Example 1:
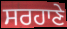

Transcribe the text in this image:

ਸਰਹਾਣੇ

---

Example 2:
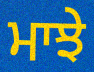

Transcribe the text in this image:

ਮਾਝੇ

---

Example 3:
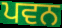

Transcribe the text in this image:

ਪਵਨ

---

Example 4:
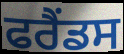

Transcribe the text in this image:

ਫਰੈਂਡਸ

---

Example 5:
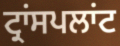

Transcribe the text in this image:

ਟ੍ਰਾਂਸਪਲਾਂਟ